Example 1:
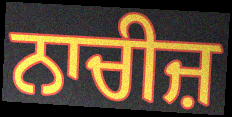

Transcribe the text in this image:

ਨਾਚੀਜ਼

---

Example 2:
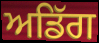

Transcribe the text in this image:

ਅਡਿੱਗ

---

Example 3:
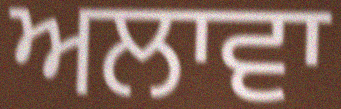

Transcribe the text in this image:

ਅਲਾਵਾ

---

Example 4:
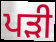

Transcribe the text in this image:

ਪਡ਼ੀ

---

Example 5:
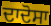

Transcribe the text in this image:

ਦਾਦੋਸਾ